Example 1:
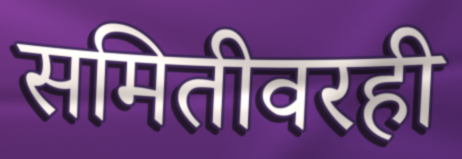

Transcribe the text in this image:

समितीवरही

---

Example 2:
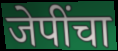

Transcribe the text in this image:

जेपींचा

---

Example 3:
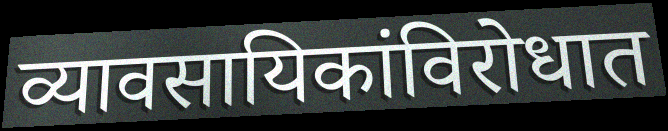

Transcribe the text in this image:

व्यावसायिकांविरोधात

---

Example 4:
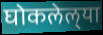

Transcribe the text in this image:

घोकलेल्या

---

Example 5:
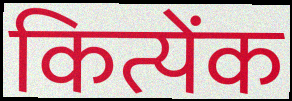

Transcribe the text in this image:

कित्येंक